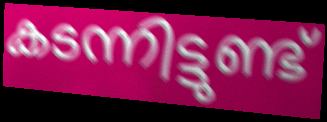
കടന്നിട്ടുണ്ട്